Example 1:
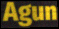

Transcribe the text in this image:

Agun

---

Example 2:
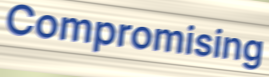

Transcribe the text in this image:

Compromising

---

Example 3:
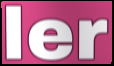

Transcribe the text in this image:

ler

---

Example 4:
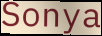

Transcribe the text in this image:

Sonya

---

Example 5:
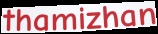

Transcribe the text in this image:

thamizhan